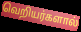
வெறியர்களால்